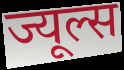
ज्यूल्स